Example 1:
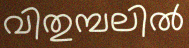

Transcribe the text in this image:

വിതുമ്പലിൽ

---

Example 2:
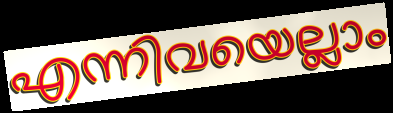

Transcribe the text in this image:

എന്നിവയെല്ലാം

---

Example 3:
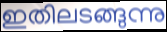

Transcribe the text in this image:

ഇതിലടങ്ങുന്നു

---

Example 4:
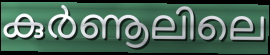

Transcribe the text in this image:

കുർണൂലിലെ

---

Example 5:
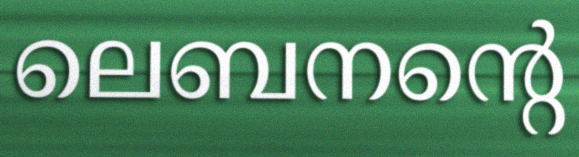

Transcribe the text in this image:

ലെബനന്റെ